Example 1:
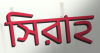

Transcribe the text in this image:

সিরাহ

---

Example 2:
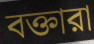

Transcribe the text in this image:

বক্তারা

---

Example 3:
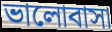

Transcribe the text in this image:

ভালোবাসা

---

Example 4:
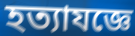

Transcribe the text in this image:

হত্যাযজ্ঞে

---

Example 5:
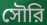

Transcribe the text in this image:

সৌরি